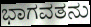
ಭಾಗವತನು